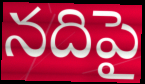
నదిపై